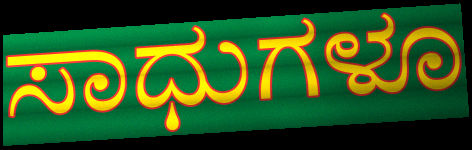
ಸಾಧುಗಳೂ